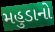
મહુડાનો